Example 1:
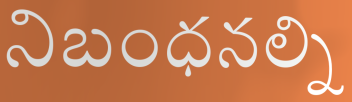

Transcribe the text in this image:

నిబంధనల్ని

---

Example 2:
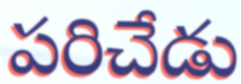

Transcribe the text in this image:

పరిచేడు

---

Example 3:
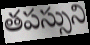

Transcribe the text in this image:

తపస్సుని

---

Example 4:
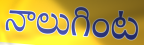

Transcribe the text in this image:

నాలుగింట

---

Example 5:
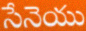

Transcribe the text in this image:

సేనెయు